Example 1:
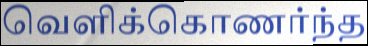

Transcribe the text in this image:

வெளிக்கொணர்ந்த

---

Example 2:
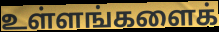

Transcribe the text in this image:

உள்ளங்களைக்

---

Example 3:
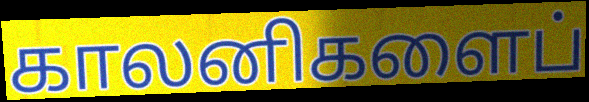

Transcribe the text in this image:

காலனிகளைப்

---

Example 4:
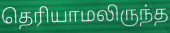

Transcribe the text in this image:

தெரியாமலிருந்த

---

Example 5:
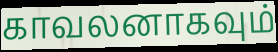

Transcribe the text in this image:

காவலனாகவும்